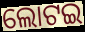
ଲୋଟଇ